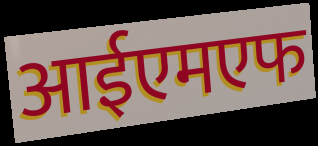
आईएमएफ